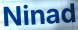
Ninad